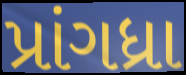
પ્રાંગધ્રા